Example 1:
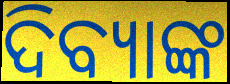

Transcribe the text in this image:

ଦିବ୍ୟାଙ୍କ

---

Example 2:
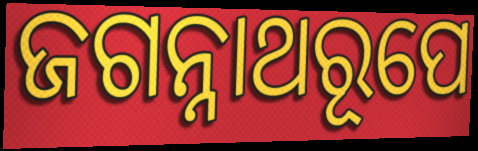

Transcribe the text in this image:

ଜଗନ୍ନାଥରୂପେ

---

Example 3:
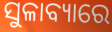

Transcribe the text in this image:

ସୁଳାବ୍ୟାରେ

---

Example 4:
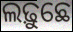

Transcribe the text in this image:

ଲଢ଼ୁଛେ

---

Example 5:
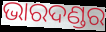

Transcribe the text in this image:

ଭାରଦଣ୍ଡର